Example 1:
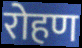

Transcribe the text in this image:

रोहण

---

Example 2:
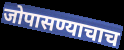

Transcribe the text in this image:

जोपासण्याचाच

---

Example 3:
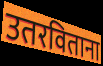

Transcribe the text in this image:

उतरविताना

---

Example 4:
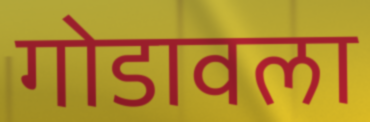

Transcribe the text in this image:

गोडावला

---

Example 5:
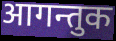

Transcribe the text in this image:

आगन्तुक